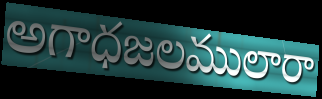
అగాధజలములారా